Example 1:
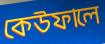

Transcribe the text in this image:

কেউফালে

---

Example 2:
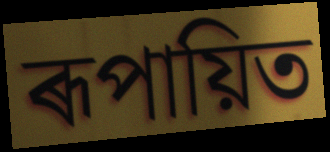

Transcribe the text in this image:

ৰূপায়িত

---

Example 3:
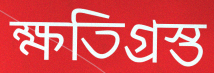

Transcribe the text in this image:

ক্ষতিগ্ৰস্ত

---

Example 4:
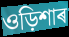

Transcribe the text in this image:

ওড়িশাৰ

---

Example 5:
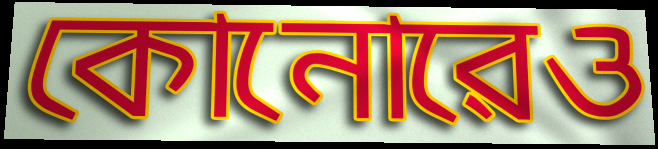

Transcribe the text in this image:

কোনোৱেও